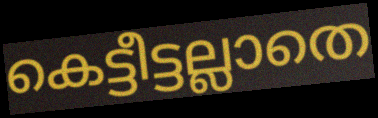
കെട്ടീട്ടല്ലാതെ